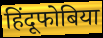
हिंदूफोबिया